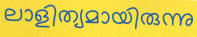
ലാളിത്യമായിരുന്നു